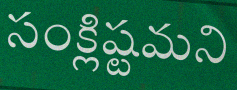
సంక్లిష్టమని